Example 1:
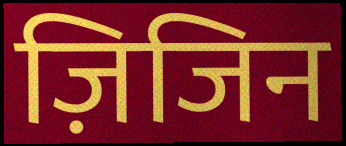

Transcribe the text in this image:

ज़िजिन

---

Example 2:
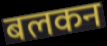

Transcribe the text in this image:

बलकन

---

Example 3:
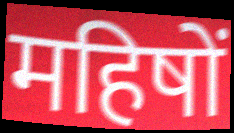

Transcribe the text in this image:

महिषों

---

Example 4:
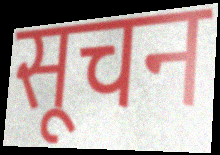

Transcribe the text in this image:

सूचन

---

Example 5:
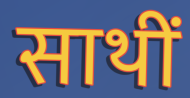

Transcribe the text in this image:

साथीं